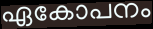
ഏകോപനം